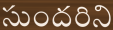
సుందరిని